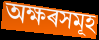
অক্ষৰসমূহ